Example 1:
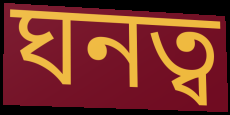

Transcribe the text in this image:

ঘনত্ব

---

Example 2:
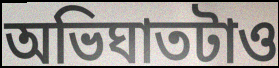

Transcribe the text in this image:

অভিঘাতটাও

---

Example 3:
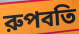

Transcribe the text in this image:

রুপবতি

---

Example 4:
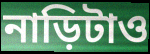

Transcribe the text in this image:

নাড়িটাও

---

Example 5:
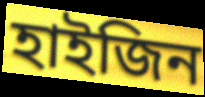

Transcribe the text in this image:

হাইজিন